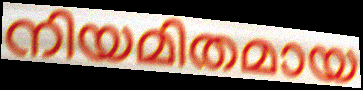
നിയമിതമായ